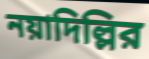
নয়াদিল্লির